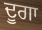
ਦੂਗਾ